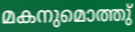
മകനുമൊത്തു്